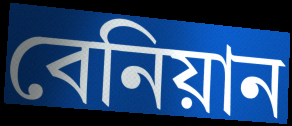
বেনিয়ান